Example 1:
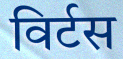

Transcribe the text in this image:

विर्टस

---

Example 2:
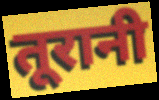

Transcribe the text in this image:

तूरानी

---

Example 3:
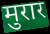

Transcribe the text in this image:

मुरार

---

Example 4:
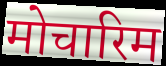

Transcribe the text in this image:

मोचारिम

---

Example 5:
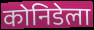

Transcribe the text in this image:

कोनिडेला